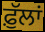
ਫ਼ੁੱਲਾਂ